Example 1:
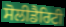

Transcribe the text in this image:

ਸੋਲੀਡੈਰਿਟੀ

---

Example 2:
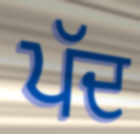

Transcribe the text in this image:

ਪੱਦ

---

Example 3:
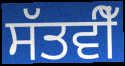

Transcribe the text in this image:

ਸੱਤਵੀਁ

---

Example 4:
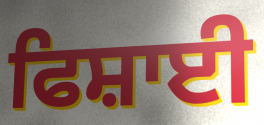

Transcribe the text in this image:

ਫਿਸ਼ਾਈ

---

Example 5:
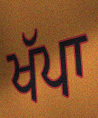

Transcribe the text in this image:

ਖੱਪਾ